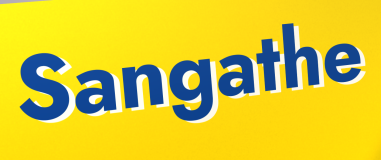
Sangathe